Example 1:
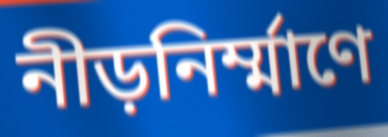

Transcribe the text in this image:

নীড়নির্ম্মাণে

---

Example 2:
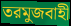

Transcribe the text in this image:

তরমুজবাহী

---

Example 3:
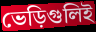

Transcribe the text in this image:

ভেড়িগুলিই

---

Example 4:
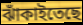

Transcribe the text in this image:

ঝাঁকাইতেছে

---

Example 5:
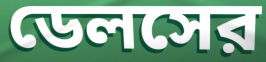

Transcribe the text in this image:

ডেলসের